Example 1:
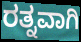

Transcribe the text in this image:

ರತ್ನವಾಗಿ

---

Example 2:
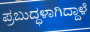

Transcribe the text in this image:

ಪ್ರಬುದ್ಧಳಾಗಿದ್ದಾಳೆ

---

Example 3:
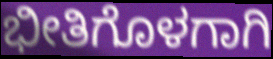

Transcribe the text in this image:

ಭೀತಿಗೊಳಗಾಗಿ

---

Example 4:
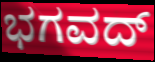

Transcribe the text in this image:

ಭಗವದ್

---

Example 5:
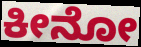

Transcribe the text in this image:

ಕೀನೋ